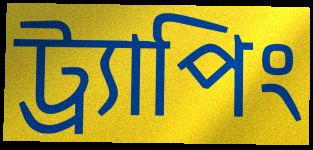
ট্র্যাপিং